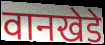
वानखेडे